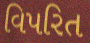
વિપરિત